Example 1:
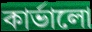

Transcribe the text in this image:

কার্ভালো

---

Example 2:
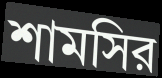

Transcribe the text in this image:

শামসির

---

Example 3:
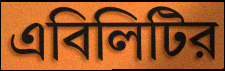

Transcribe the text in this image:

এবিলিটির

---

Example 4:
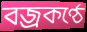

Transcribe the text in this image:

বজ্রকণ্ঠে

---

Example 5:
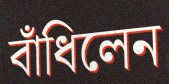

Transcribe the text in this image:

বাঁধিলেন